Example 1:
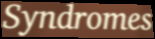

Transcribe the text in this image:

Syndromes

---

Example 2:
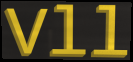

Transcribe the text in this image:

Vll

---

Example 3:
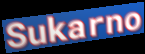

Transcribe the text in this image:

Sukarno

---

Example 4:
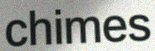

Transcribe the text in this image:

chimes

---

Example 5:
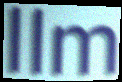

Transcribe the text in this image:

Ilm